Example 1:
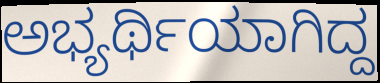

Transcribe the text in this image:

ಅಭ್ಯರ್ಥಿಯಾಗಿದ್ದ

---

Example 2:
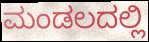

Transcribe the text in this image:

ಮಂಡಲದಲ್ಲಿ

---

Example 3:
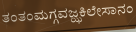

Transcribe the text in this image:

ತಂತಂಮಗ್ಗವಜ್ಝಕಿಲೇಸಾನಂ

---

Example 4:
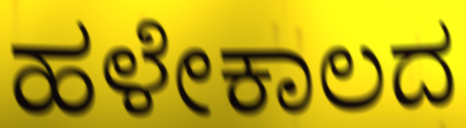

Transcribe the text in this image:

ಹಳೇಕಾಲದ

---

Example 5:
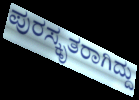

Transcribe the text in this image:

ಪುರಸ್ಕೃತರಾಗಿದ್ದು